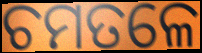
ଚମତଳେ